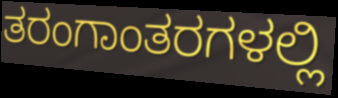
ತರಂಗಾಂತರಗಳಲ್ಲಿ